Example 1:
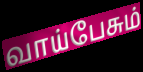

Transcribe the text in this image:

வாய்பேசும்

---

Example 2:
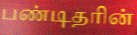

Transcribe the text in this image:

பண்டிதரின்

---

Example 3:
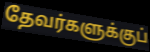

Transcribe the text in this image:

தேவர்களுக்குப்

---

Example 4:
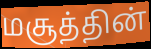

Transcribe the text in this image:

மசூத்தின்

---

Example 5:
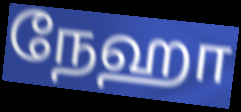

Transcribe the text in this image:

நேஹா